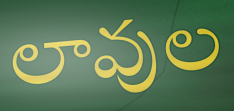
లావుల